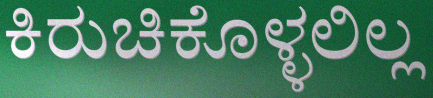
ಕಿರುಚಿಕೊಳ್ಳಲಿಲ್ಲ